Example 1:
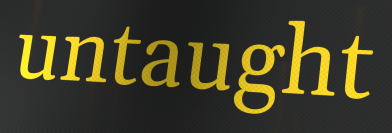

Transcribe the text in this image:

untaught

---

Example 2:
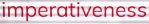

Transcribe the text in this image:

imperativeness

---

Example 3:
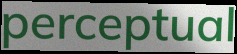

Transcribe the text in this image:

perceptual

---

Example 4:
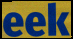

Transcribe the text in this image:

eek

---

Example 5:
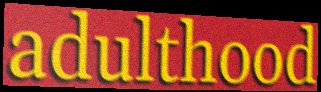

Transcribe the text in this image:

adulthood